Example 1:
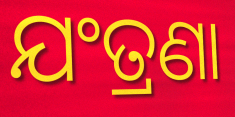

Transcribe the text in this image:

ଯଂତ୍ରଣା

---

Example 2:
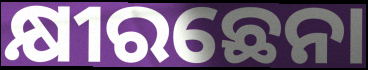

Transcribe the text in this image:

କ୍ଷୀରଛେନା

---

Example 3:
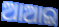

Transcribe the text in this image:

ଆଆଇ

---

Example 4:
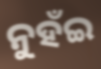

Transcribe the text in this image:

ନୁହଁଇ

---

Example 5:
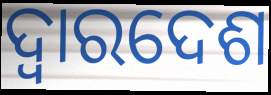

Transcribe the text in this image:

ଦ୍ୱାରଦେଶ